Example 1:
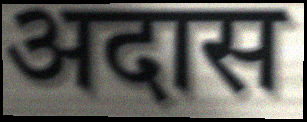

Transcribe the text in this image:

अदास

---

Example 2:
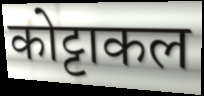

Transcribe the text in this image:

कोट्टाकल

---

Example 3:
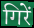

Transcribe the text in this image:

गिरें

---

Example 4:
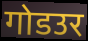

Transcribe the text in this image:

गोडउर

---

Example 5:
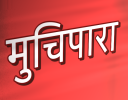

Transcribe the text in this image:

मुचिपारा